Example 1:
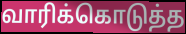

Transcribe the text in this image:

வாரிக்கொடுத்த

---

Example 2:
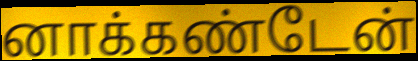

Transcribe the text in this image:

னாக்கண்டேன்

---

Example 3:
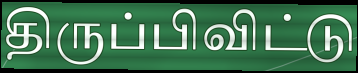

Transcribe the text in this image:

திருப்பிவிட்டு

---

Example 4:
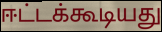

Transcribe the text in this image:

ஈட்டக்கூடியது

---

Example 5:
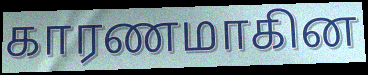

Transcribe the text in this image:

காரணமாகின